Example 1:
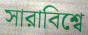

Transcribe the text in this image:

সারাবিশ্বে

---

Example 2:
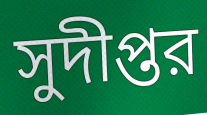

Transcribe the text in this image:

সুদীপ্তর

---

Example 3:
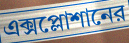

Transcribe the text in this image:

এক্সপ্লোশানের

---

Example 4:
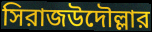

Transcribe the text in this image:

সিরাজউদৌল্লার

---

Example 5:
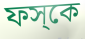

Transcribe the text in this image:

ফস্‌কে